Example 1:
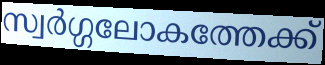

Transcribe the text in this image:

സ്വർഗ്ഗലോകത്തേക്ക്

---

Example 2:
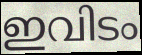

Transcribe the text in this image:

ഇവിടം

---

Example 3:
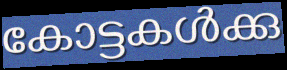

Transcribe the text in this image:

കോട്ടകൾക്കു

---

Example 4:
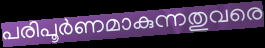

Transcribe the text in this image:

പരിപൂർണമാകുന്നതുവരെ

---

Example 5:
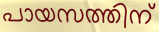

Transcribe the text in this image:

പായസത്തിന്